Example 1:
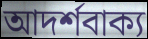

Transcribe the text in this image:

আদর্শবাক্য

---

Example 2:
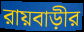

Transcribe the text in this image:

রায়বাড়ীর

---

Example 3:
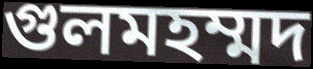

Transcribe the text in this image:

গুলমহম্মদ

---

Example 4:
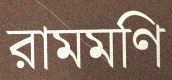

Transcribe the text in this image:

রামমণি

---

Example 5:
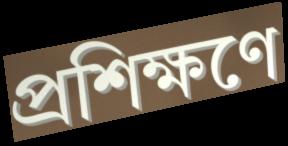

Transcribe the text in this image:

প্রশিক্ষণে